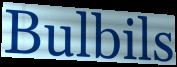
Bulbils